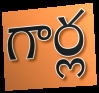
గార్ల